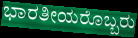
ಭಾರತೀಯರೊಬ್ಬರು